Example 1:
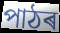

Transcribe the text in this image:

পাঠৰ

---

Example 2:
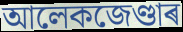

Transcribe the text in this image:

আলেকজেণ্ডাৰ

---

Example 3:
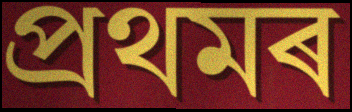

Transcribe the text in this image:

প্ৰথমৰ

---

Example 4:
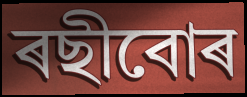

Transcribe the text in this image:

ৰছীবোৰ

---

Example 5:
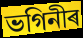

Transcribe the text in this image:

ভগিনীৰ